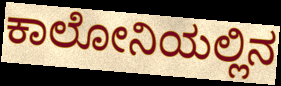
ಕಾಲೋನಿಯಲ್ಲಿನ